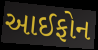
આઈફોન